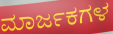
ಮಾರ್ಜಕಗಳ